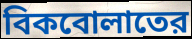
বিকবোলাতের